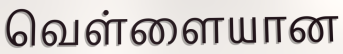
வெள்ளையான